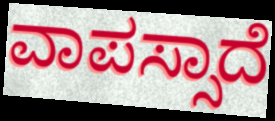
ವಾಪಸ್ಸಾದೆ